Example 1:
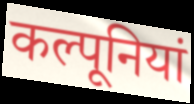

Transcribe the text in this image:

कल्पूनियां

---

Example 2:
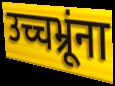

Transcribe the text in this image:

उच्चभ्रूंना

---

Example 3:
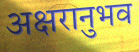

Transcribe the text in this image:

अक्षरानुभव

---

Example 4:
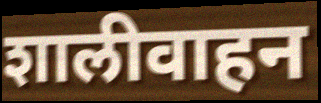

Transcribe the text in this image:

शालीवाहन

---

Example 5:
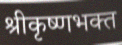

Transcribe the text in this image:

श्रीकृष्णभक्त